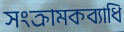
সংক্রামকব্যাধি